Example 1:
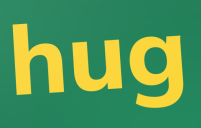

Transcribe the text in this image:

hug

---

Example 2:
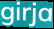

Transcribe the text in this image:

girja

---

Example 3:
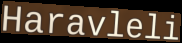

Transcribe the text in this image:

Haravleli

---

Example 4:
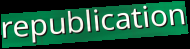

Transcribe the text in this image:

republication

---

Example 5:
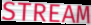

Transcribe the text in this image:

STREAM